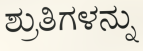
ಶ್ರುತಿಗಳನ್ನು